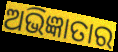
ଅଭିଜ୍ଞାତାର